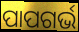
ପାପଗର୍ଭ